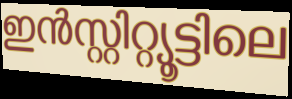
ഇൻസ്റ്റിറ്റ്യൂട്ടിലെ